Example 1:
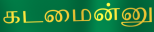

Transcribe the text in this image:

கடமைன்னு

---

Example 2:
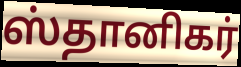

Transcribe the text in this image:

ஸ்தானிகர்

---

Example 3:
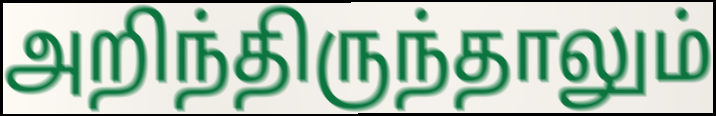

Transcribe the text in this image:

அறிந்திருந்தாலும்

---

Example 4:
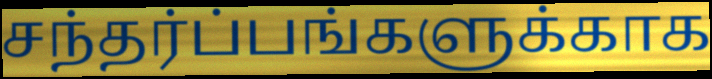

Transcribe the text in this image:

சந்தர்ப்பங்களுக்காக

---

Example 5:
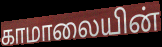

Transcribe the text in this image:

காமாலையின்